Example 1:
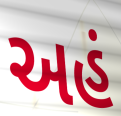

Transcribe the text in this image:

અહં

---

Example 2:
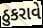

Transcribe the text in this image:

ઠુકરાવે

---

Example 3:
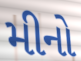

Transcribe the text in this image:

મીનો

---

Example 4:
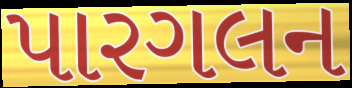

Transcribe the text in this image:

પારગલન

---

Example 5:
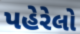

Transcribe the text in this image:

પહેરેલો